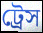
ট্রেস